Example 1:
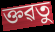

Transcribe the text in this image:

ক্তৱতু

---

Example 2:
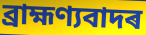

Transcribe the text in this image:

ব্ৰাহ্মণ্যবাদৰ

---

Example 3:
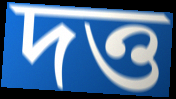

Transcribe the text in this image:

দত্ত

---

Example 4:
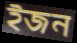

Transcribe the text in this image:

ইজন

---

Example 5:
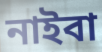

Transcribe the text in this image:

নাইবা